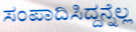
ಸಂಪಾದಿಸಿದ್ದನ್ನೆಲ್ಲ